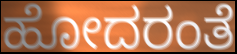
ಹೋದರಂತೆ